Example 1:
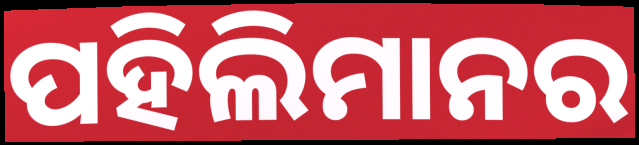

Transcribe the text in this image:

ପହିଲିମାନର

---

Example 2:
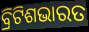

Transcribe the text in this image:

ବ୍ରିଟିଶଭାରତ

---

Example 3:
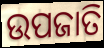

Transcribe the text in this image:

ଉପଜାତି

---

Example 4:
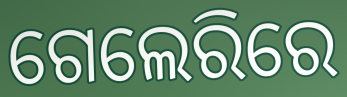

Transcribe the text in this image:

ଗେଲେରିରେ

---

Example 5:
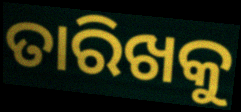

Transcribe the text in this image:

ତାରିଖକୁ